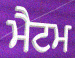
ਮੈਟਮ